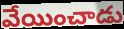
వేయించాడు